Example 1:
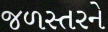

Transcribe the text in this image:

જળસ્તરને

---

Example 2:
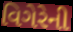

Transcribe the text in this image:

વિગેરેની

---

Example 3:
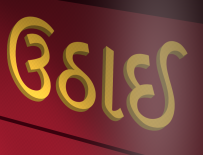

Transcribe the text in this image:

ઉઠાઈ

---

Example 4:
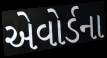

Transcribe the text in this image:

એવોર્ડના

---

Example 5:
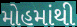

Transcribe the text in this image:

મોહમાંથી